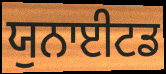
ਯੁਨਾਈਟਡ